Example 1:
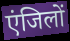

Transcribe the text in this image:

एंजिलों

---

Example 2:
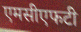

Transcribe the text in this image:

एमसीएफटी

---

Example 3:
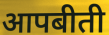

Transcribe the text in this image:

आपबीती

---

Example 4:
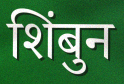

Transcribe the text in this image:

शिंबुन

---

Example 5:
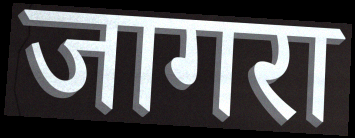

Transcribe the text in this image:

जागरा